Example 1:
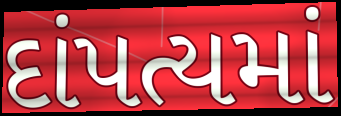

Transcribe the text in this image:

દાંપત્યમાં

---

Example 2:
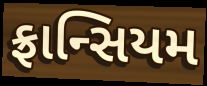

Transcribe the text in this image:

ફ્રાન્સિયમ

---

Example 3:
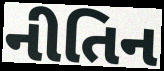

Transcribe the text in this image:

નીતિન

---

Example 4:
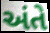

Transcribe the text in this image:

અંતે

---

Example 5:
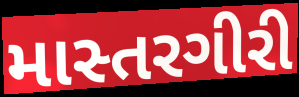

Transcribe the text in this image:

માસ્તરગીરી